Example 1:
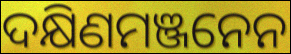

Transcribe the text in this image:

ଦକ୍ଷିଣମଞ୍ଜନେନ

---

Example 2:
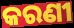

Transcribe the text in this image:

କରଣୀ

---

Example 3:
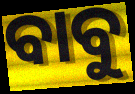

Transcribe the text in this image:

ବାବୁ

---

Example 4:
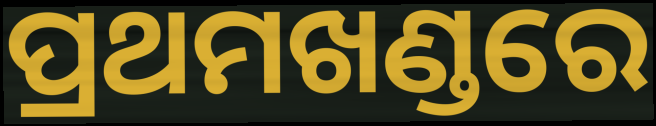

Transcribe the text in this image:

ପ୍ରଥମଖଣ୍ଡରେ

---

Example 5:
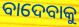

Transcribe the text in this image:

ବାଦେବାକୁ